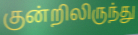
குன்றிலிருந்து